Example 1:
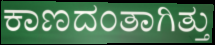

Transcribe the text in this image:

ಕಾಣದಂತಾಗಿತ್ತು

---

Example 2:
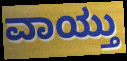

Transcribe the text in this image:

ವಾಯ್ತು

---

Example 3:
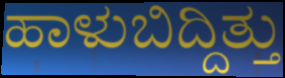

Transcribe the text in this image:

ಹಾಳುಬಿದ್ದಿತ್ತು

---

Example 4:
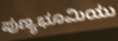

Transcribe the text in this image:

ಪುಣ್ಯಭೂಮಿಯು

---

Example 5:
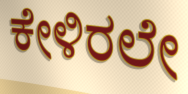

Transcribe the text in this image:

ಕೇಳಿರಲೇ